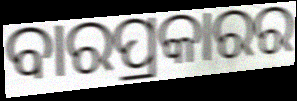
ବାରପ୍ରକାରର